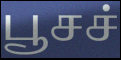
பூசச்